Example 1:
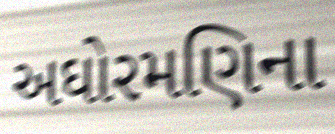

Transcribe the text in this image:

અઘોરમણિના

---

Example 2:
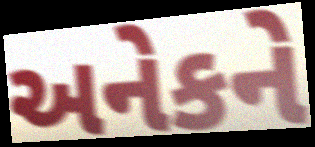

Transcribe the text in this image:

અનેકને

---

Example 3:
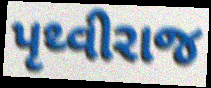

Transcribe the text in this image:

પૃથ્વીરાજ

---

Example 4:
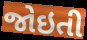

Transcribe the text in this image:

જોઇતી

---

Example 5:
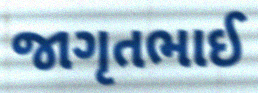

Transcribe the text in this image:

જાગૃતભાઈ